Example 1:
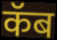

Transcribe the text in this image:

कॅब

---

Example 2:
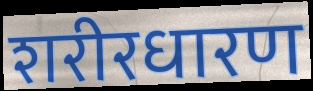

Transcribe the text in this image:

शरीरधारण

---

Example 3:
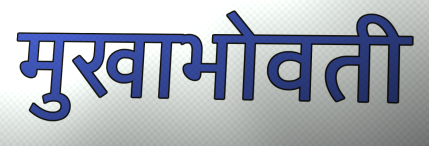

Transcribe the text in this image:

मुखाभोवती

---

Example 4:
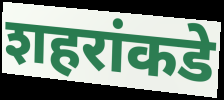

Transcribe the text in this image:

शहरांकडे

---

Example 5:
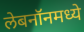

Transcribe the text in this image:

लेबनॉनमध्ये